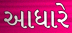
આધારે